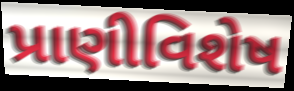
પ્રાણીવિશેષ